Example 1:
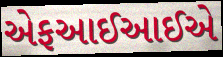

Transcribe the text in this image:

એફઆઈઆઈએ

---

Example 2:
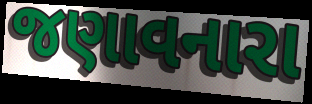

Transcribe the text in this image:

જણાવનારા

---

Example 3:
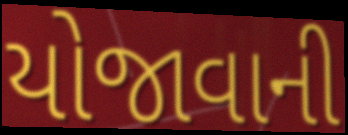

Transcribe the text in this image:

યોજાવાની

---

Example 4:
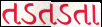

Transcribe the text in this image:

તડતડતા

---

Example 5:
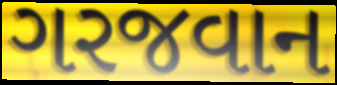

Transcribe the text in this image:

ગરજવાન